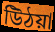
উিঠয়া